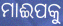
ମାଈପକୁ